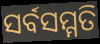
ସର୍ବସମ୍ମତି